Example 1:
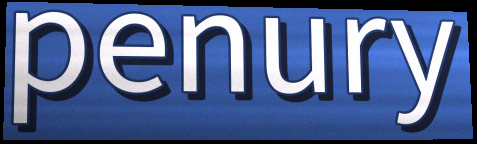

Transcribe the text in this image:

penury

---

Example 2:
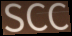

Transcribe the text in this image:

SCC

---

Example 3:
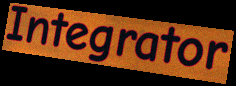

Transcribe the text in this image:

Integrator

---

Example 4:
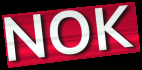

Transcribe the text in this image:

NOK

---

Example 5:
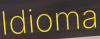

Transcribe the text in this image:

Idioma